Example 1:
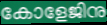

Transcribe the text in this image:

കോളേജിനു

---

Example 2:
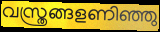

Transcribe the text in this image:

വസ്ത്രങ്ങളണിഞ്ഞു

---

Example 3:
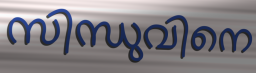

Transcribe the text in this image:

സിന്ധുവിനെ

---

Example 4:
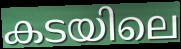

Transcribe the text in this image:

കടയിലെ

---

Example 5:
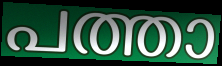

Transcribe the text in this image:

പത്താ